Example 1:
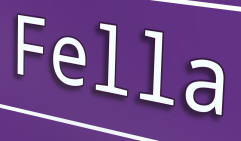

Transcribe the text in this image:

Fella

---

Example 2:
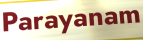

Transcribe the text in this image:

Parayanam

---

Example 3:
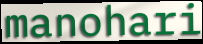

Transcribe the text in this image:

manohari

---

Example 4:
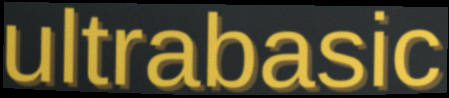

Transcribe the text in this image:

ultrabasic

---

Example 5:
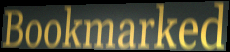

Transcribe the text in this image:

Bookmarked